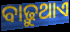
ବାଢ଼ୁଥାଏ